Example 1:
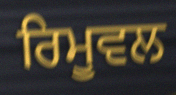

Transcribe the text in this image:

ਰਿਮੂਵਲ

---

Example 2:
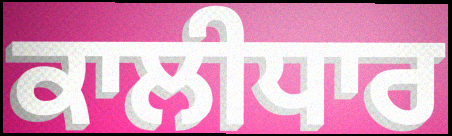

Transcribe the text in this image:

ਕਾਲੀਧਾਰ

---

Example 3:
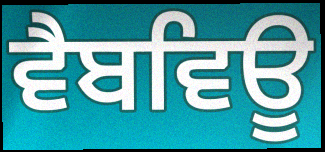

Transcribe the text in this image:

ਵੈਬਵਿਊ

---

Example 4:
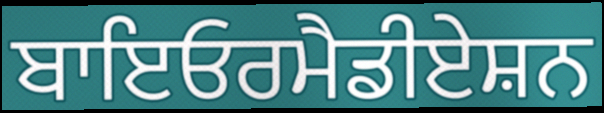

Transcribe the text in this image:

ਬਾਇਓਰਮੈਡੀਏਸ਼ਨ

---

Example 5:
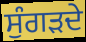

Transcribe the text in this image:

ਸੁੰਗੜਦੇ